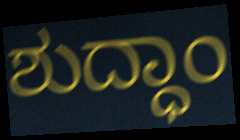
ಶುದ್ಧಾಂ